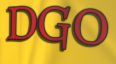
DGO